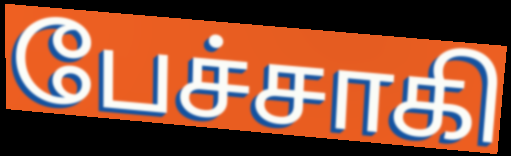
பேச்சாகி